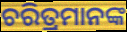
ଚରିତ୍ରମାନଙ୍କ